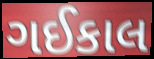
ગઈકાલ